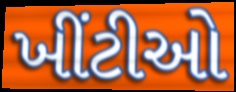
ખીંટીઓ